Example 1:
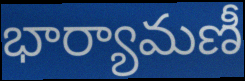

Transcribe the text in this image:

భార్యామణీ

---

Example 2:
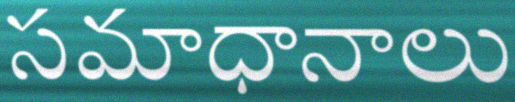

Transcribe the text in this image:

సమాధానాలు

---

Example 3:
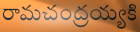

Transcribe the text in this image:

రామచంద్రయ్యకి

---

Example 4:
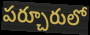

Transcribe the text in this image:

పర్చూరులో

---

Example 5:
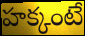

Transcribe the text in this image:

హక్కంటే